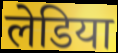
लेडिया